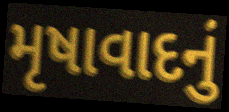
મૃષાવાદનું